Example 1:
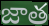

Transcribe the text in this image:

జాత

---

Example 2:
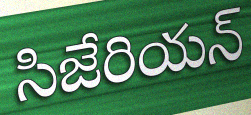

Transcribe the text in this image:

సిజేరియన్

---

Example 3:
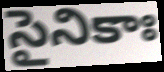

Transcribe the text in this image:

సైనికాః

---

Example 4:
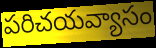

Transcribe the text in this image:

పరిచయవ్యాసం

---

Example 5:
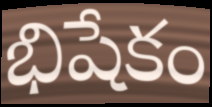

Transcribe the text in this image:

భిషేకం